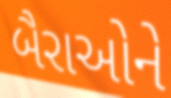
બૈરાઓને